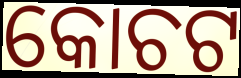
କୋଚଟ